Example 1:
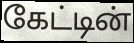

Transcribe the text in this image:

கேட்டின்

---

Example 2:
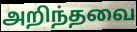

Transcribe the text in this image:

அறிந்தவை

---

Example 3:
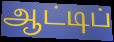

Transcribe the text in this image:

ஆட்டிப்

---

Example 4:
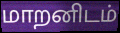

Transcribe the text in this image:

மாறனிடம்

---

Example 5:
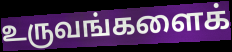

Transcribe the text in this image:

உருவங்களைக்